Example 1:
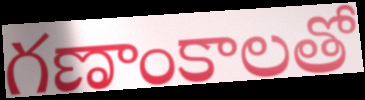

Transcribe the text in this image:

గణాంకాలతో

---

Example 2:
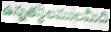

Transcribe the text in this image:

ఉన్నతస్థలములమీది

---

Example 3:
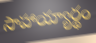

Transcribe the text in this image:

సాహాయ్యార్థం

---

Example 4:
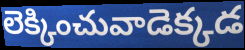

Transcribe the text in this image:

లెక్కించువాడెక్కడ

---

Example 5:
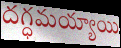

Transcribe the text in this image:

దగ్ధమయ్యాయి